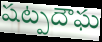
షట్పదౌఘ